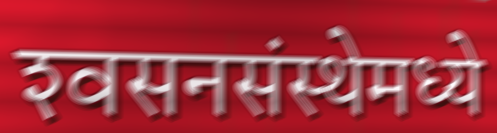
श्वसनसंस्थेमध्ये